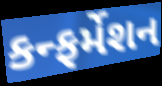
કન્ફર્મેશન